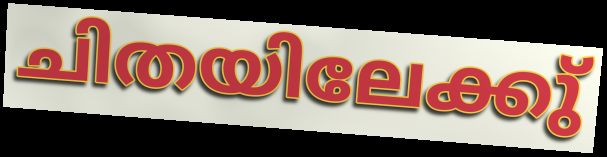
ചിതയിലേക്കു്